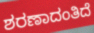
ಶರಣಾದಂತಿದೆ